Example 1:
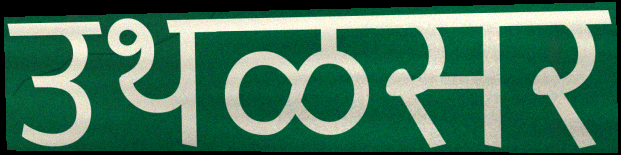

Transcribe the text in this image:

उथळसर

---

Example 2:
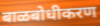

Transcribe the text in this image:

बाळबोधीकरण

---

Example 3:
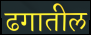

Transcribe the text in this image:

ढगातील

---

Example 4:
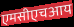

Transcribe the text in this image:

एमसीएचआय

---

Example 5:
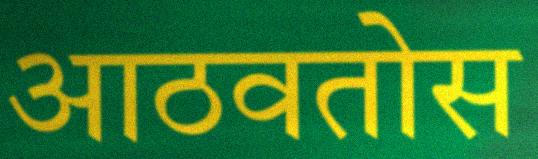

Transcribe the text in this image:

आठवतोस